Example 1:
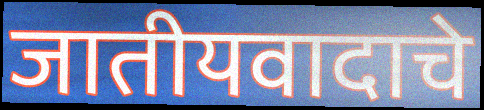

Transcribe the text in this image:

जातीयवादाचे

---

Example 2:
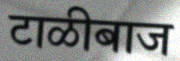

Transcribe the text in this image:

टाळीबाज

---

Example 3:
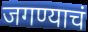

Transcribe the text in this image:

जगण्याचं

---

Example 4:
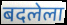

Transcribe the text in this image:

बदलेला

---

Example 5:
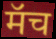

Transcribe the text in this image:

मॅच